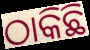
ଠାକିଛି